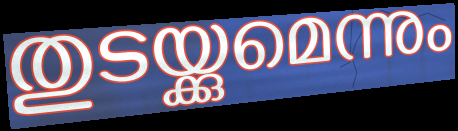
തുടയ്ക്കുമെന്നും